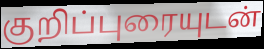
குறிப்புரையுடன்